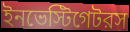
ইনভেস্টিগেটরস